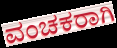
ವಂಚಕರಾಗಿ